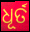
ଧୂର୍ତ